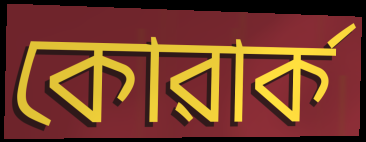
কোৱাৰ্ক